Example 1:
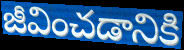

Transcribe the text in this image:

జీవించడానికి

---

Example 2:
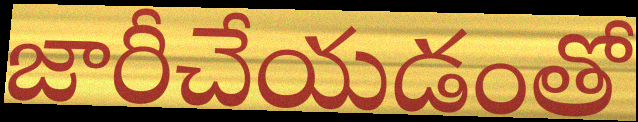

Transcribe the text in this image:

జారీచేయడంతో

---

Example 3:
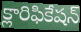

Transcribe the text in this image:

క్లారిఫికేషన్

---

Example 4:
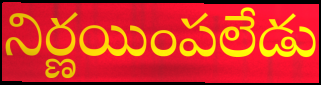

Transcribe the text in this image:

నిర్ణయింపలేడు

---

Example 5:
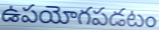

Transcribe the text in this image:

ఉపయోగపడటం